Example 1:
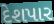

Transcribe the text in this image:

દેશપાર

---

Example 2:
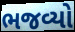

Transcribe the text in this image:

ભજવ્યો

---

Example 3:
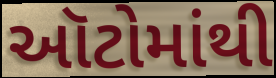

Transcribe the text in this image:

ઑટોમાંથી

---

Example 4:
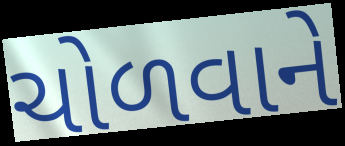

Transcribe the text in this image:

ચોળવાને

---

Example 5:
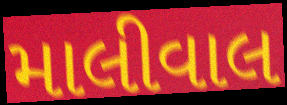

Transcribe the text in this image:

માલીવાલ